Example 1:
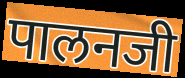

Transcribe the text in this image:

पालनजी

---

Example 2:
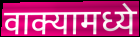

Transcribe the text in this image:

वाक्यामध्ये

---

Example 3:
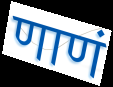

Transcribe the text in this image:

णाणं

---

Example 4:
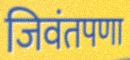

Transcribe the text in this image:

जिवंतपणा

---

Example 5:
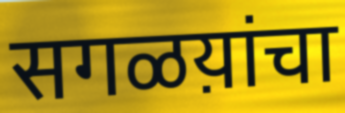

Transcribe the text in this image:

सगळय़ांचा